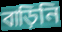
বাড়িনি